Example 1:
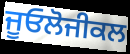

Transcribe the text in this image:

ਜੂਓਲੋਜੀਕਲ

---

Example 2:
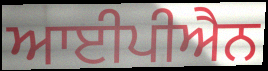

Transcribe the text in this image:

ਆਈਪੀਐਨ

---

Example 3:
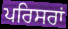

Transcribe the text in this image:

ਪਰਿਸਰਾਂ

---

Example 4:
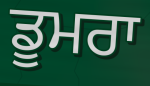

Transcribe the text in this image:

ਡੂਮਰਾ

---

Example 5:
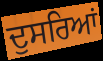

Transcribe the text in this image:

ਦੁਸਰਿਆਂ